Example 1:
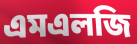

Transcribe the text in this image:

এমএলজি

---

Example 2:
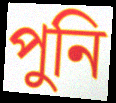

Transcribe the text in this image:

পুনি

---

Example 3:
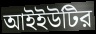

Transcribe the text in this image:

আইইউটির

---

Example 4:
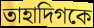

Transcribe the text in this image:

তাহাদিগকে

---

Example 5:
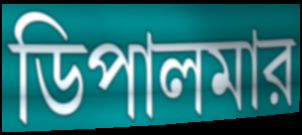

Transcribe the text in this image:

ডিপালমার